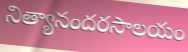
నిత్యానందరసాలయం